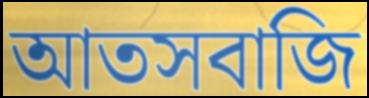
আতসবাজি